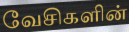
வேசிகளின்